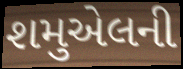
શમુએલની